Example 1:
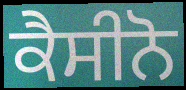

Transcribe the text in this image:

ਕੈਸੀਨੋ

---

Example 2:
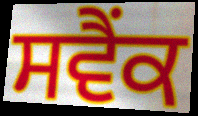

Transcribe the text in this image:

ਸਵੈਂਕ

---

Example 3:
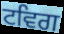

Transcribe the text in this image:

ਟਵਿਗ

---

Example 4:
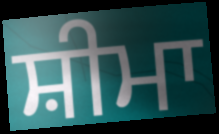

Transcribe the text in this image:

ਸ਼ੀਮਾ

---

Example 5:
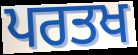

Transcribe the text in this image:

ਪਰਤਖ